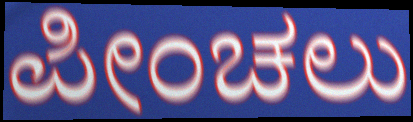
ಪೀಂಚಲು